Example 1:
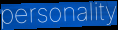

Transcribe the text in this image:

personality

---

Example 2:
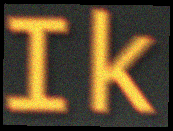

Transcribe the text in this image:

Ik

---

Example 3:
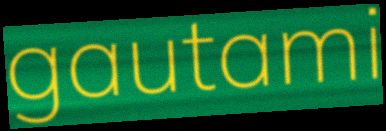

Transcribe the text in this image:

gautami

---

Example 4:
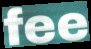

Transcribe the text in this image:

fee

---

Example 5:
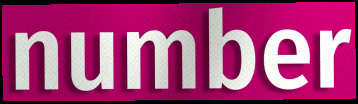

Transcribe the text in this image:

number